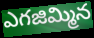
ఎగజిమ్మిన